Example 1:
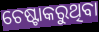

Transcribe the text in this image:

ଚେଷ୍ଟାକରୁଥିବା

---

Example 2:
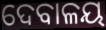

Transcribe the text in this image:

ଦେବାଳୟ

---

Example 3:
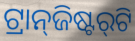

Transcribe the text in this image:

ଟ୍ରାନ୍‌ଜିଷ୍ଟର୍‌ଟି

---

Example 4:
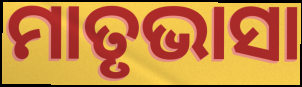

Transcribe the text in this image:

ମାତୃଭାସା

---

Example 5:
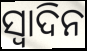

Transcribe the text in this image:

ସ୍ବାଦିନ